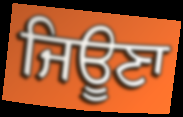
ਜਿਊਣਾ